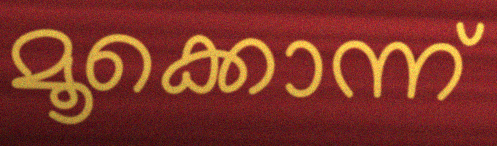
മൂക്കൊന്ന്